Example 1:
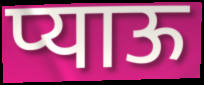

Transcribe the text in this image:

प्याऊ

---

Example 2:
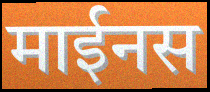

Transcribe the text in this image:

माईनस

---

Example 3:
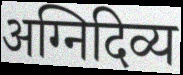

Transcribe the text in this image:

अग्निदिव्य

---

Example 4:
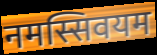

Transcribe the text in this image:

नमस्सिवयम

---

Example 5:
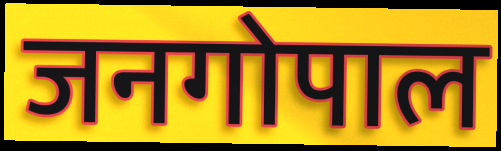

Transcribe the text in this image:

जनगोपाल